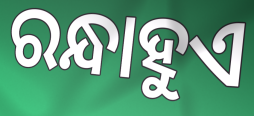
ରନ୍ଧାହୁଏ